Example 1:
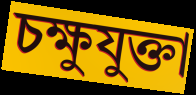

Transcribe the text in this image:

চক্ষুযুক্তা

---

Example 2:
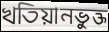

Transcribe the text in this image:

খতিয়ানভুক্ত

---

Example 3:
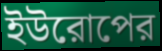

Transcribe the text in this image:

ইউরোপের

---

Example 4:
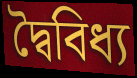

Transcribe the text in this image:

দ্বৈবিধ্য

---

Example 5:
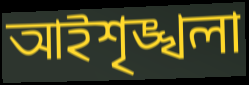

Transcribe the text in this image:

আইশৃঙ্খলা